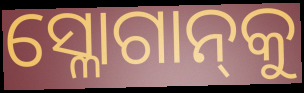
ସ୍ଳୋଗାନ୍‌କୁ